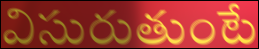
విసురుతుంటే